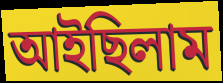
আইছিলাম